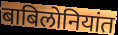
बाबिलोनियांत